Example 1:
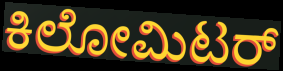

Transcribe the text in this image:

ಕಿಲೋಮಿಟರ್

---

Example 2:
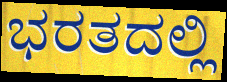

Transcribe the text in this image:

ಭರತದಲ್ಲಿ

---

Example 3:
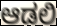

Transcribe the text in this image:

ಆಡಲಿ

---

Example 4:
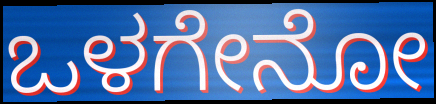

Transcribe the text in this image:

ಒಳಗೇನೋ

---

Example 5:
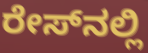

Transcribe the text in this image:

ರೇಸ್‍ನಲ್ಲಿ